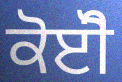
ਕੋਈੋ